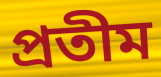
প্ৰতীম